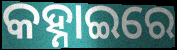
କହ୍ନାଇରେ